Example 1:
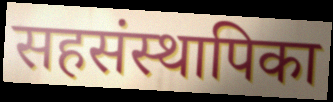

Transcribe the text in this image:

सहसंस्थापिका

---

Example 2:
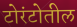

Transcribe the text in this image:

टोरंटोतील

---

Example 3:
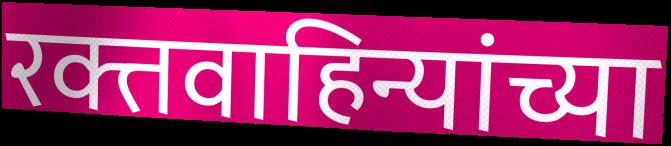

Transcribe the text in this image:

रक्तवाहिन्यांच्या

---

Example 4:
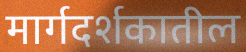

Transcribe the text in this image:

मार्गदर्शकातील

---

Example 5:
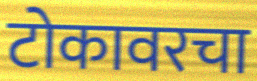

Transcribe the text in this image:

टोकावरचा